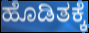
ಹೊಡಿತಕ್ಕೆ